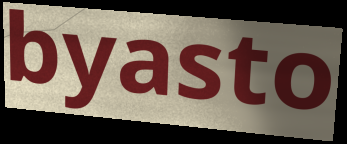
byasto